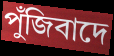
পুঁজিবাদে